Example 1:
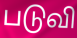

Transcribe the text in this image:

படுவி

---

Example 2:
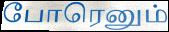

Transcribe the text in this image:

போரெனும்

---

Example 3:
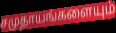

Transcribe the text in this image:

சமுதாயங்களையும்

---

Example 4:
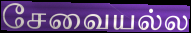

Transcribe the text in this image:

சேவையல்ல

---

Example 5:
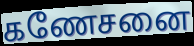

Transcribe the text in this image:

கணேசனை